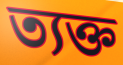
ত্যক্ত